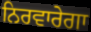
ਨਿਰਵਾਰੇਗਾ